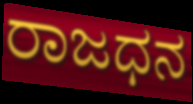
ರಾಜಧನ